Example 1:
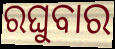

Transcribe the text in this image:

ରଘୁବାର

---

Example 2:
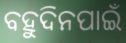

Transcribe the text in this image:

ବହୁଦିନପାଇଁ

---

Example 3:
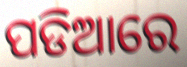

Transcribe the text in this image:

ପଡିଆରେ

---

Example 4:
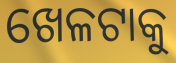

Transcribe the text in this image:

ଖେଳଟାକୁ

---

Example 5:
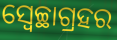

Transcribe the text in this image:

ସ୍ବେଚ୍ଛାଗ୍ରହର